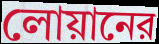
লোয়ানের